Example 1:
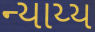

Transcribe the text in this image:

ન્યાય્ય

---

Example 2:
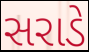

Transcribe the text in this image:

સરાડે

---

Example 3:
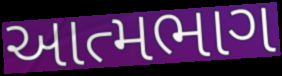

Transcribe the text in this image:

આત્મભાગ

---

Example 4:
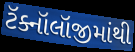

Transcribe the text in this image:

ટૅક્નૉલૉજીમાંથી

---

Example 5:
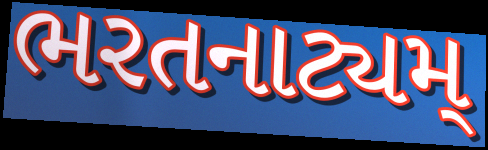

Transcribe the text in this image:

ભરતનાટ્યમ્